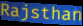
Rajsthan